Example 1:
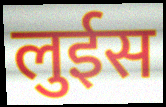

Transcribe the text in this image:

लुईस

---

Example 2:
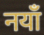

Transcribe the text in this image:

नयाँ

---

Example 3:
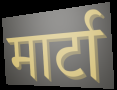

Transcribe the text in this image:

मार्टा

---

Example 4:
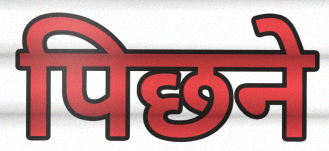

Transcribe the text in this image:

पिछने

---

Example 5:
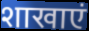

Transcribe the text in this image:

शाखाएं